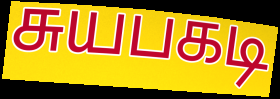
சுயபகடி